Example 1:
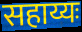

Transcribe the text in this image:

सहाय्यः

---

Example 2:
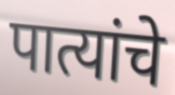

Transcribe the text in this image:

पात्यांचे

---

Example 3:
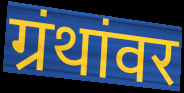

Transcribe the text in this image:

ग्रंथांवर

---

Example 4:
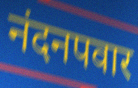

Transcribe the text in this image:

नंदनपवार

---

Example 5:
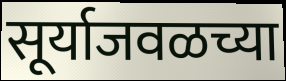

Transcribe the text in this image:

सूर्याजवळच्या